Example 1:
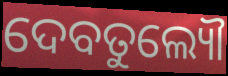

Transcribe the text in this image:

ଦେବତୁଲ୍ୟୌ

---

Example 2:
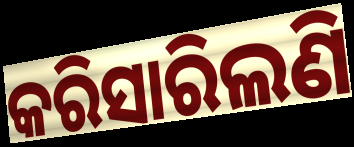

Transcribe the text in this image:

କରିସାରିଲଣି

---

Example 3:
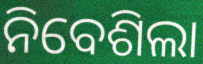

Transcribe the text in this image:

ନିବେଶିଲା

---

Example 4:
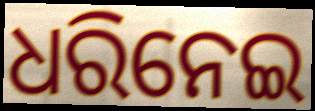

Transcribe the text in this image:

ଧରିନେଇ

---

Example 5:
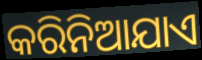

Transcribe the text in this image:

କରିନିଆଯାଏ